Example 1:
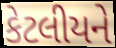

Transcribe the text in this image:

કેટલીયને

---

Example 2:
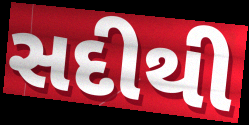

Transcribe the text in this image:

સદીથી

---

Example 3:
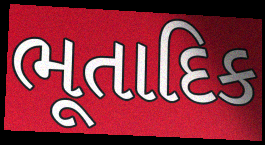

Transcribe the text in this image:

ભૂતાદિક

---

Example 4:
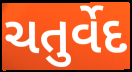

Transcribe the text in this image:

ચતુર્વેદ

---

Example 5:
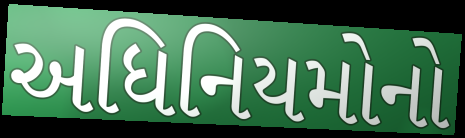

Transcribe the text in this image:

અધિનિયમોનો